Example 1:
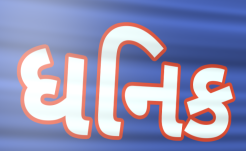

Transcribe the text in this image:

ધનિક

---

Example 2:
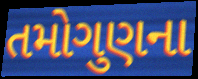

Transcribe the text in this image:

તમોગુણના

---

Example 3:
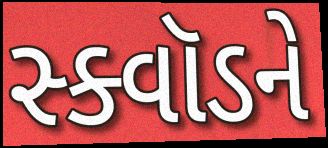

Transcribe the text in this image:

સ્ક્વૉડને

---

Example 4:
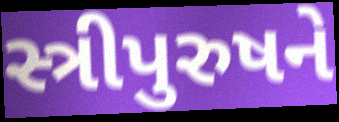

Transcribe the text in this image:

સ્ત્રીપુરુષને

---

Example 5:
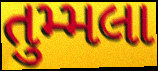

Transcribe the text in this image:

તુમ્મલા